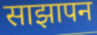
साझापन